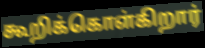
கூறிக்கொள்கிறார்